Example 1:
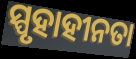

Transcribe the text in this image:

ସ୍ପୃହାହୀନତା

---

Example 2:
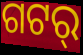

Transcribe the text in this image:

ଗଟର୍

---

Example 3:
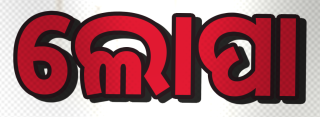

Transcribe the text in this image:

ଲୋପା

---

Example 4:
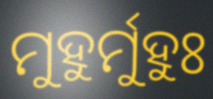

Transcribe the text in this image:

ମୁହୁର୍ମୁହୁଃ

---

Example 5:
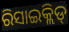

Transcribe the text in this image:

ରିସାଇକ୍ଲିଡ୍